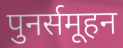
पुनर्समूहन